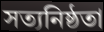
সত্যনিষ্ঠতা